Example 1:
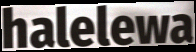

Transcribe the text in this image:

halelewa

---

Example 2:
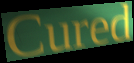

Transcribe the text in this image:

Cured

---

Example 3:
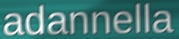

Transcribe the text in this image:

adannella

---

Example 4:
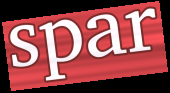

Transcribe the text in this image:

spar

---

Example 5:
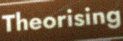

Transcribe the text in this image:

Theorising